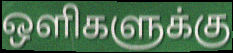
ஒளிகளுக்கு